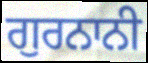
ਗੁਰਨਾਨੀ